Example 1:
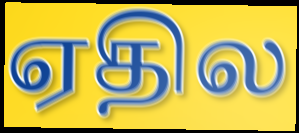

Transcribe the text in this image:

ஏதில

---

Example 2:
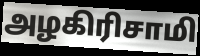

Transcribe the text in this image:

அழகிரிசாமி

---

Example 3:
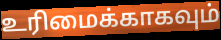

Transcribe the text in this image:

உரிமைக்காகவும்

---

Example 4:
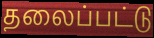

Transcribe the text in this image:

தலைப்பட்டு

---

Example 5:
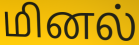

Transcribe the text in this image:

மினல்